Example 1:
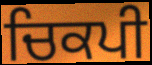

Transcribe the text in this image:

ਚਿਕਪੀ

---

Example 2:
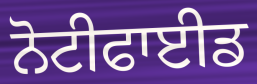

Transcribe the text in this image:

ਨੋਟੀਫਾਈਡ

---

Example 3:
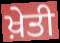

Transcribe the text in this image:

ਖ਼ੇਤੀ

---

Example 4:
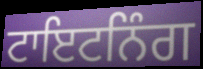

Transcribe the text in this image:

ਟਾਇਟਨਿੰਗ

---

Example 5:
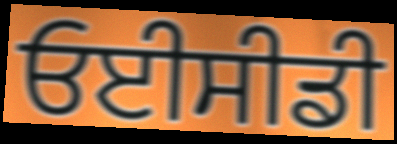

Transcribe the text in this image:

ਓਈਸੀਡੀ